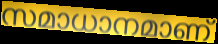
സമാധാനമാണ്